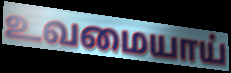
உவமையாய்